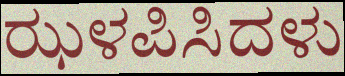
ಝಳಪಿಸಿದಳು